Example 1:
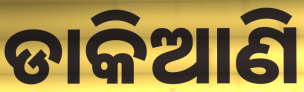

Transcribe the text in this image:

ଡାକିଆଣି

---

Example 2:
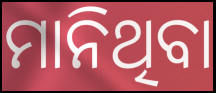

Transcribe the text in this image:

ମାନିଥିବା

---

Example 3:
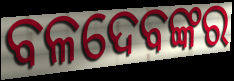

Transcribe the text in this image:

ବଳଦେବଙ୍କର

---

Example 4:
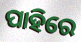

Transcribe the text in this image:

ପାହିରେ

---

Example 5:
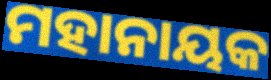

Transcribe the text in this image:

ମହାନାୟକ